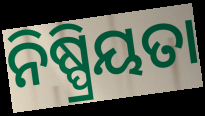
ନିଷ୍ପ୍ରିୟତା